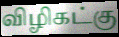
விழிகட்கு